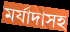
মর্যাদাসহ